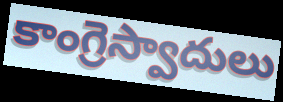
కాంగ్రెస్వాదులు